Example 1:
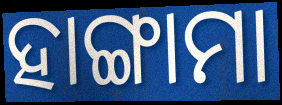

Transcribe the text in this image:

ହାଙ୍ଗାମା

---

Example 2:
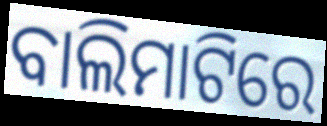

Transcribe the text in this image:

ବାଲିମାଟିରେ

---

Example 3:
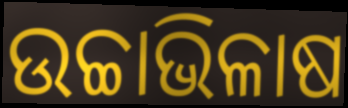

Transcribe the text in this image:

ଉଚ୍ଚାଭିଳାଷ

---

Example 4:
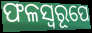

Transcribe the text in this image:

ଫଳସ୍ୱରୂପେ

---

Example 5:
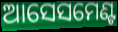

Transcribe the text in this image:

ଆସେସମେଣ୍ଟ